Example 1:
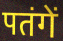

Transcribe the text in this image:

पतंगें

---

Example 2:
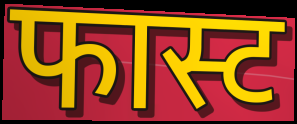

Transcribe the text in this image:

फास्ट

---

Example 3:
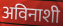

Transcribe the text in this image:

अविनाशी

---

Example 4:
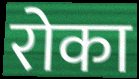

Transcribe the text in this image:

रोका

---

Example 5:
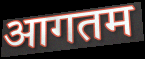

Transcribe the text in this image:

आगतम